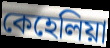
কেহেলিয়া